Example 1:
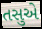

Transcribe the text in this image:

તસુએ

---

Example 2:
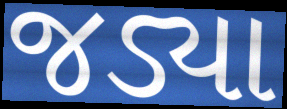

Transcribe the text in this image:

જડ્યા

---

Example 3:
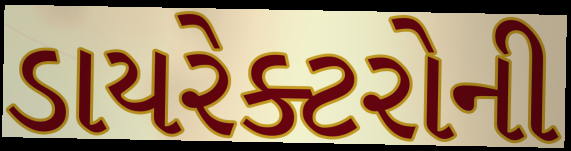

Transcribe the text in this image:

ડાયરેક્ટરોની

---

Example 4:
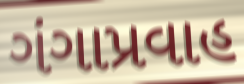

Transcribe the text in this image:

ગંગાપ્રવાહ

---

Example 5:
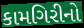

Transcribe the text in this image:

કામગિરીનો